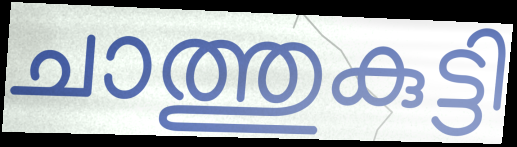
ചാത്തുകുട്ടി